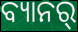
ବ୍ୟାନର୍